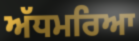
ਅੱਧਮਰਿਆ